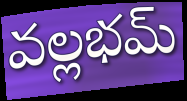
వల్లభమ్